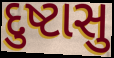
દુષ્ટાસુ